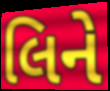
લિને